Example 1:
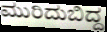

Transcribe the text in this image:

ಮುರಿದುಬಿದ್ದ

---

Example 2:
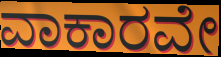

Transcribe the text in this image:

ವಾಕಾರವೇ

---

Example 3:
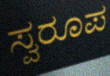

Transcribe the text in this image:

ಸ್ವರೂಪ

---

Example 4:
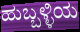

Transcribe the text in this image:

ಹುಬ್ಬಳ್ಳಿಯ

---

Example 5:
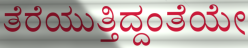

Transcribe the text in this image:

ತೆರೆಯುತ್ತಿದ್ದಂತೆಯೇ